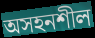
অসহনশীল